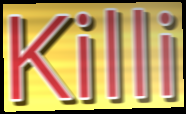
Killi